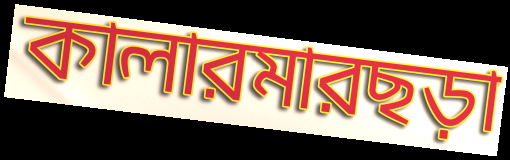
কালারমারছড়া